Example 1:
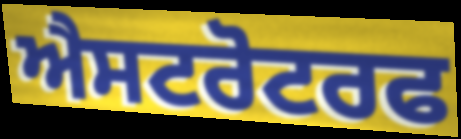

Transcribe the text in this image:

ਐਸਟਰੋਟਰਫ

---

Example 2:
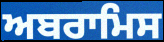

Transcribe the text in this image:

ਅਬਰਾਮਿਸ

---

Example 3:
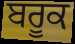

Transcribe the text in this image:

ਬਰੂਕ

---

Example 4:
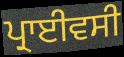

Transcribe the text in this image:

ਪ੍ਰਾਈਵਸੀ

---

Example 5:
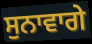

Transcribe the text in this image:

ਸੁਨਾਵਾਗੇ